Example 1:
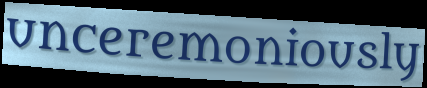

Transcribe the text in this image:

unceremoniously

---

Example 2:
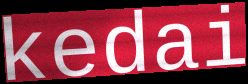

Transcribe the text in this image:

kedai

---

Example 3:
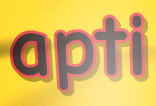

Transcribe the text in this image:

apti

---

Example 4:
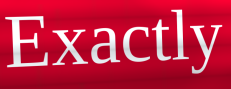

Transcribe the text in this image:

Exactly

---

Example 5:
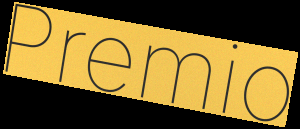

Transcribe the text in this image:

Premio